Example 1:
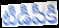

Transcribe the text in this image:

టీడీపీకి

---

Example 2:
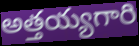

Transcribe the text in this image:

అత్తయ్యగారి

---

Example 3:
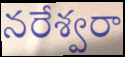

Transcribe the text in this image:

నరేశ్వరా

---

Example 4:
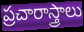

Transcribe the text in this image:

ప్రచారాస్త్రాలు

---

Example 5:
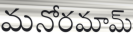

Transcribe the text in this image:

మనోరమామ్